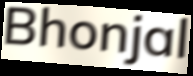
Bhonjal